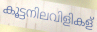
കൂട്ടനിലവിളികള്